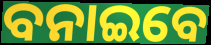
ବନାଇବେ